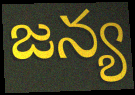
జన్య